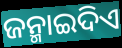
ଜନ୍ମାଇଦିଏ